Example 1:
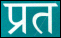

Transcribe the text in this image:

प्रत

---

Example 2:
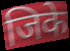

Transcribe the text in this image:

जिके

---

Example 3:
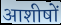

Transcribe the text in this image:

आशीषों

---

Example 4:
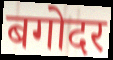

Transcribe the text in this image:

बगोदर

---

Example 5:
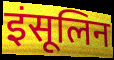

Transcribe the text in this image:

इंसूलिन